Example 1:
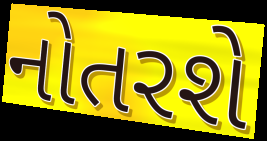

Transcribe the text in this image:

નોતરશે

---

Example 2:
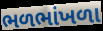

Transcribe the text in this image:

ભળભાંખળા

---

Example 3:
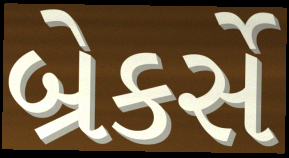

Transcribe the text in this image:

બ્રેકર્સે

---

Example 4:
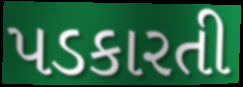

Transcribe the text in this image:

પડકારતી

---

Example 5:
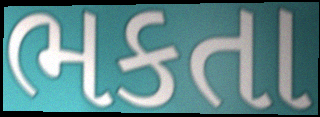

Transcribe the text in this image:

ભકતા